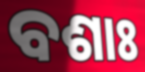
ବଶାଃ